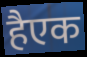
हैएक